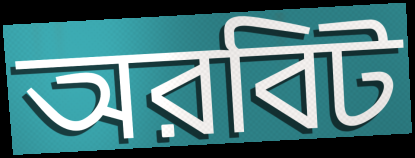
অরবিট